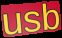
usb